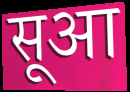
सूआ